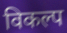
विकल्प